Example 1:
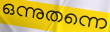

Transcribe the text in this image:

ഒന്നുതന്നെ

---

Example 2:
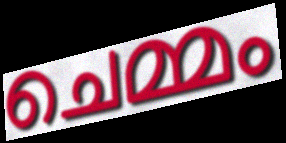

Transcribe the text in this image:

ചെമ്മം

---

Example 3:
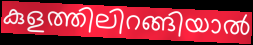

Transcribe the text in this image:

കുളത്തിലിറങ്ങിയാൽ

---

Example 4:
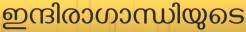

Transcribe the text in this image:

ഇന്ദിരാഗാന്ധിയുടെ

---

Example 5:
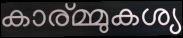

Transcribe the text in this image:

കാര്മ്മുകശ്യ